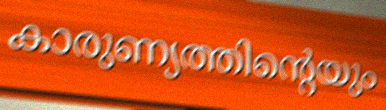
കാരുണ്യത്തിന്റെയും